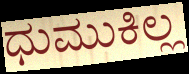
ಧುಮುಕಿಲ್ಲ